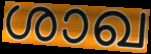
ശാഖ